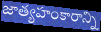
జాత్యహంకారాన్ని